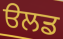
ੳਲਡ